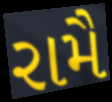
રામૈ